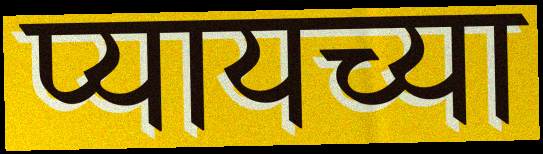
प्यायच्या